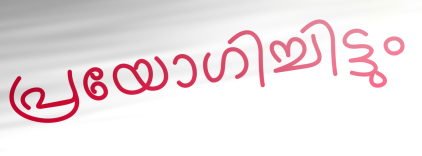
പ്രയോഗിച്ചിട്ടും